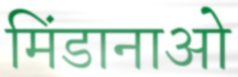
मिंडानाओ